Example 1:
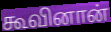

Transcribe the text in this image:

கூவினான்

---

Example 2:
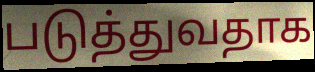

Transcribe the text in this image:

படுத்துவதாக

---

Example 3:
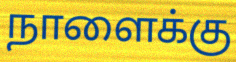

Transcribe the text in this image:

நாளைக்கு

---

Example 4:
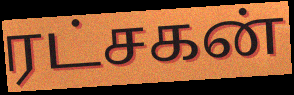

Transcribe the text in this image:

ரட்சகன்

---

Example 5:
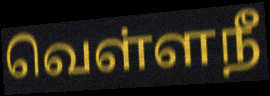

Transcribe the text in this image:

வெள்ளநீ